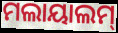
ମଲାୟାଲମ୍